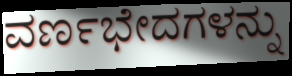
ವರ್ಣಭೇದಗಳನ್ನು